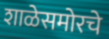
शाळेसमोरचे